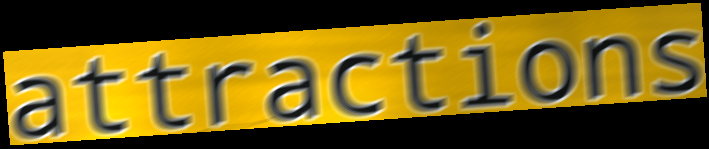
attractions